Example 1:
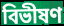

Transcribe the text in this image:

বিভীষণ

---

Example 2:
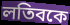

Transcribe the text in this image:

লতিবকে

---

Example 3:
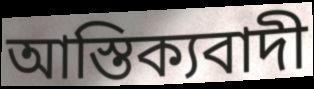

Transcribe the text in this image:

আস্তিক্যবাদী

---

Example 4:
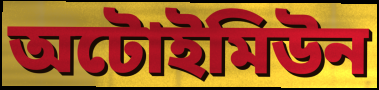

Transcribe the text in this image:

অটোইমিউন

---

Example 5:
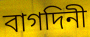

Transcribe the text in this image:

বাগদিনী